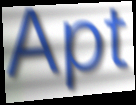
Apt